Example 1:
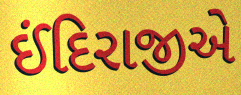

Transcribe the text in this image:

ઈંદિરાજીએ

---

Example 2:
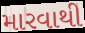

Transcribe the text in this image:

મારવાથી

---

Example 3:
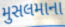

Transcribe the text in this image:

મુસલમાના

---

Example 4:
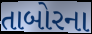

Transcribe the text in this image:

તાબોરના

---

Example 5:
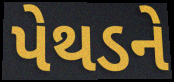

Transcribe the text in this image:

પેથડને